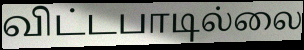
விட்டபாடில்லை